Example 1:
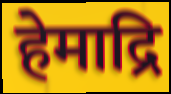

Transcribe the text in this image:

हेमाद्रि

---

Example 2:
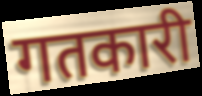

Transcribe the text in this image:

गतकारी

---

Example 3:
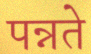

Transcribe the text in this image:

पन्नते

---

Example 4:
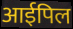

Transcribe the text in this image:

आईपिल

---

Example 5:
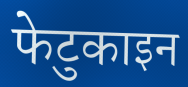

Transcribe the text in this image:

फेटुकाइन